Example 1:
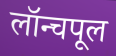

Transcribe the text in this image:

लॉन्चपूल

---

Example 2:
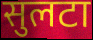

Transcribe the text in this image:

सुलटा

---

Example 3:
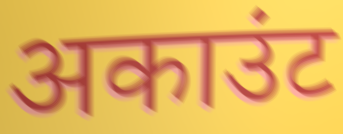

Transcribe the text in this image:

अकाउंट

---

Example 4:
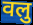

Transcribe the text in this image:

वलु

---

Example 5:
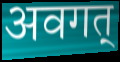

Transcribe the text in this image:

अवगत्